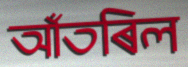
আঁতৰিল